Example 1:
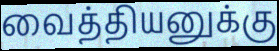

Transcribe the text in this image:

வைத்தியனுக்கு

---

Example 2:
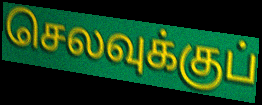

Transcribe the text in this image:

செலவுக்குப்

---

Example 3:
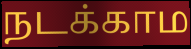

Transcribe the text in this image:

நடக்காம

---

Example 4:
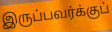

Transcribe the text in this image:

இருப்பவர்க்குப்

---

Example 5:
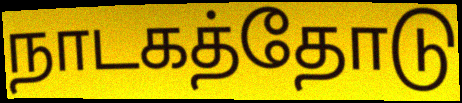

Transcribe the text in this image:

நாடகத்தோடு